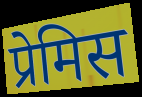
प्रेमिस